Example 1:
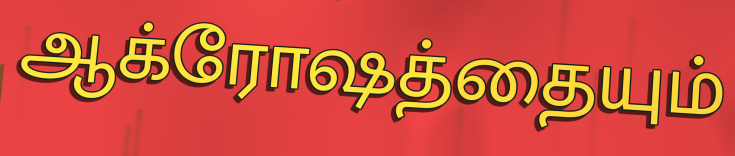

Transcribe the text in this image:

ஆக்ரோஷத்தையும்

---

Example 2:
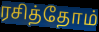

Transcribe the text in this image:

ரசித்தோம்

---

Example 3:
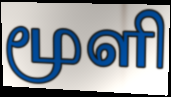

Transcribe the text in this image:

மூளி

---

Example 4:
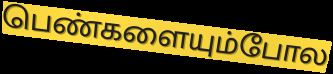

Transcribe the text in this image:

பெண்களையும்போல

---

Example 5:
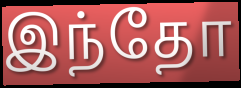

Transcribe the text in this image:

இந்தோ